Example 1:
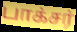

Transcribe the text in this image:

பாக்சர்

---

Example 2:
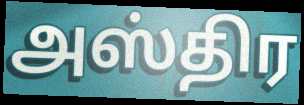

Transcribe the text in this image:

அஸ்திர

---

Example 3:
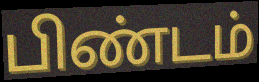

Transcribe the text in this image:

பிண்டம்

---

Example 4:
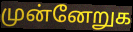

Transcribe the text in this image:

முன்னேறுக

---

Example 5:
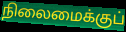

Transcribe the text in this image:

நிலைமைக்குப்